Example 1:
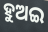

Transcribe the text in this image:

ହୁଅଇ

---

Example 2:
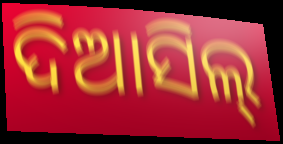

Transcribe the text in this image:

ଦିଆସିଲ୍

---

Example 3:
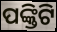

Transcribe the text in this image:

ପଙ୍କ୍ତିଟି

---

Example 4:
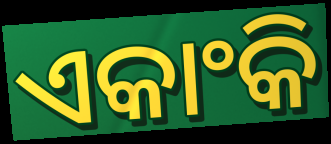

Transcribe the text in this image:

ଏକାଂକି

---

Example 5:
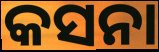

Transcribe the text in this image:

କସନା